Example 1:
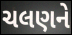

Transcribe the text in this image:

ચલણને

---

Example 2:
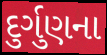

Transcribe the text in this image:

દુર્ગુણના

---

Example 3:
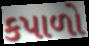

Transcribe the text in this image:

કપાળો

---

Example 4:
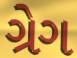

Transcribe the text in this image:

ગ્રેગ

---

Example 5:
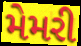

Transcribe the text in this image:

મેમરી